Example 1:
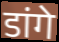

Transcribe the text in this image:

डांगे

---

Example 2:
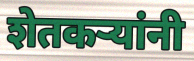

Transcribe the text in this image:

शेतकऱ्यांनी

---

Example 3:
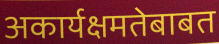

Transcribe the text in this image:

अकार्यक्षमतेबाबत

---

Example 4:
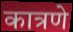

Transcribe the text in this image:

कात्रणे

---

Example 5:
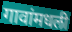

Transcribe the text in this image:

गावांमधली